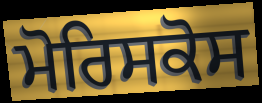
ਮੋਰਿਸਕੋਸ